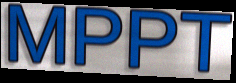
MPPT